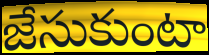
జేసుకుంటా